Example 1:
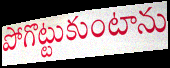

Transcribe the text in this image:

పోగొట్టుకుంటాను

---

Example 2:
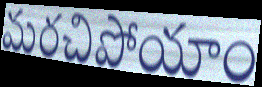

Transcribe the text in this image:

మరచిపోయాం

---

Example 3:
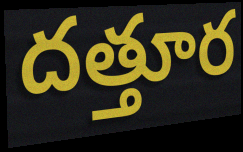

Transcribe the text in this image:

దత్తూర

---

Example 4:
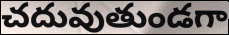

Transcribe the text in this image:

చదువుతుండగా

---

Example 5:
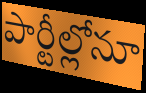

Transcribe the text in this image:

పార్టీల్లోనూ